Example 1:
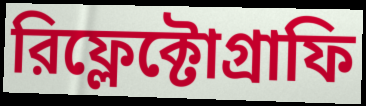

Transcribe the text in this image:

রিফ্লেক্টোগ্রাফি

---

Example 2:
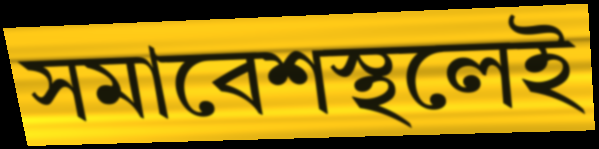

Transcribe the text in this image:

সমাবেশস্থলেই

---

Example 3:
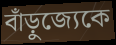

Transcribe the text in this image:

বাঁড়ুজ্যেকে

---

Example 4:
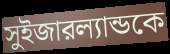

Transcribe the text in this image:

সুইজারল্যান্ডকে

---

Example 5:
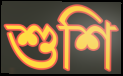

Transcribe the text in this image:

শুশি